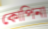
কোপিনা